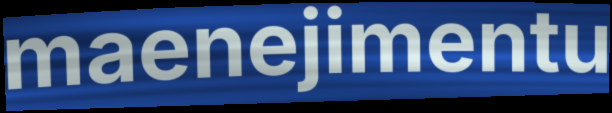
maenejimentu